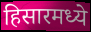
हिसारमध्ये